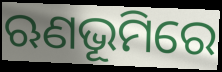
ଋଣଭୂମିରେ